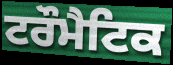
ਟਰੌਮੈਟਿਕ